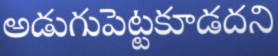
అడుగుపెట్టకూడదని